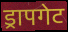
ड्रापगेट